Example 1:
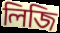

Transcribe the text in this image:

লিজি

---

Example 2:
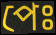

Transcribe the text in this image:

পেঃ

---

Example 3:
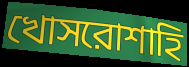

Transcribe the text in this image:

খোসরোশাহি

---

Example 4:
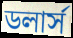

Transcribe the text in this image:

ডলার্স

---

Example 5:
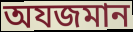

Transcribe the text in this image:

অযজমান